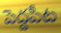
పెద్దపీట